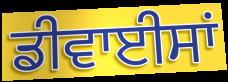
ਡੀਵਾਈਸਾਂ